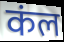
कंल